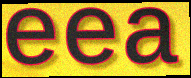
eea